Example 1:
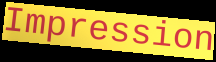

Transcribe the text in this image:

Impression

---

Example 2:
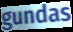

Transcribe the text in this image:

gundas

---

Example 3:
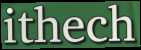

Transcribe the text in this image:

ithech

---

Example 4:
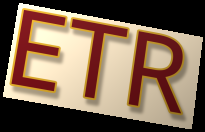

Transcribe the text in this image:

ETR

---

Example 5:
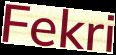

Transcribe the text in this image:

Fekri